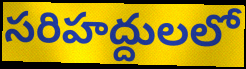
సరిహద్దులలో